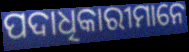
ପଦାଧିକାରୀମାନେ